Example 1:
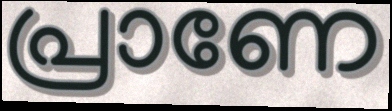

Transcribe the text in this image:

പ്രാണേ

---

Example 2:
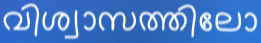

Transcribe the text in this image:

വിശ്വാസത്തിലോ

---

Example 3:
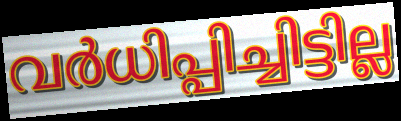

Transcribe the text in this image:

വർധിപ്പിച്ചിട്ടില്ല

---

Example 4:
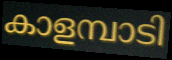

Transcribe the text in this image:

കാളമ്പാടി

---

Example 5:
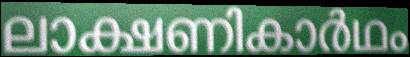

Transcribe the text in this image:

ലാക്ഷണികാർഥം